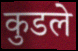
कुडले